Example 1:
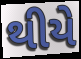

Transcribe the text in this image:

થીયે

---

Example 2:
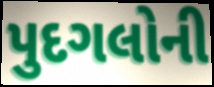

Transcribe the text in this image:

પુદગલોની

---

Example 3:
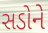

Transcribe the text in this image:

સડોને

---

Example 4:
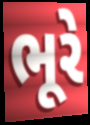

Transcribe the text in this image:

ભૂરે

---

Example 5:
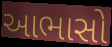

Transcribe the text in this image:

આભાસો